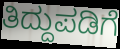
ತಿದ್ದುಪಡಿಗೆ